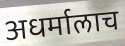
अधर्मालाच